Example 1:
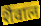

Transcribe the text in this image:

शैवाल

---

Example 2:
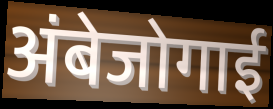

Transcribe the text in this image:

अंबेजोगाई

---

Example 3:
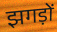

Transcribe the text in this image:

झगड़ों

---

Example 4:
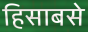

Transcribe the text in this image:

हिसाबसे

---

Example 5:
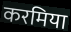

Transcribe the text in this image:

करमिया